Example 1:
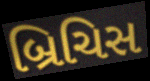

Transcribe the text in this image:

બ્રિચિસ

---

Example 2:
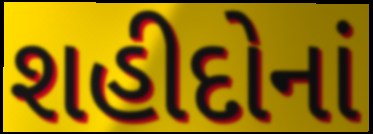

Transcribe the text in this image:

શહીદોનાં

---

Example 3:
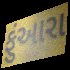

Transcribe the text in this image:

ફુંઆરા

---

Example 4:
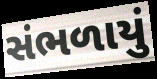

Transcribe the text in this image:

સંભળાયું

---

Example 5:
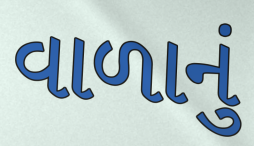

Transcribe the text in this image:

વાળાનું